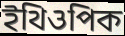
ইথিওপিক